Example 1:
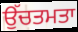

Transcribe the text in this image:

ਉੱਚਤਮਤਾ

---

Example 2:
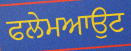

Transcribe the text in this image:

ਫਲੇਮਆਉਟ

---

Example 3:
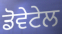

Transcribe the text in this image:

ਡੋਵੇਟੇਲ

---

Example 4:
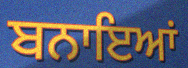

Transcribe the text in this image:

ਬਨਾਇਆਂ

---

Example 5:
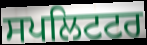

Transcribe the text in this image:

ਸਪਲਿਟਟਰ